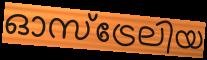
ഓസ്ട്രേലിയ